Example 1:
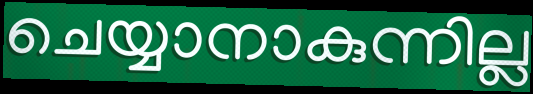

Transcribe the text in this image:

ചെയ്യാനാകുന്നില്ല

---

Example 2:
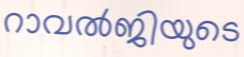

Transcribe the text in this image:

റാവൽജിയുടെ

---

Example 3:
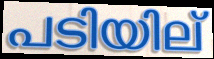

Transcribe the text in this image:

പടിയില്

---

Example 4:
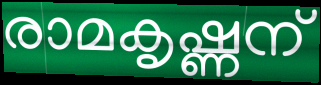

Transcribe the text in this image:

രാമകൃഷ്ണന്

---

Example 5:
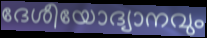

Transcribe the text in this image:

ദേശീയോദ്യാനവും